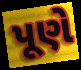
પૂણે